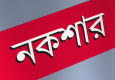
নকশার